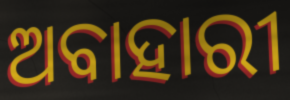
ଅବାହାରୀ